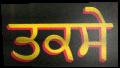
ਤਕਸੇ